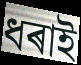
ধৰাই